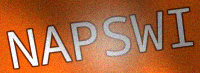
NAPSWI